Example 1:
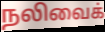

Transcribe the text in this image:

நலிவைக்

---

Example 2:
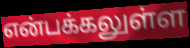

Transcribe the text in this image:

என்பக்கலுள்ள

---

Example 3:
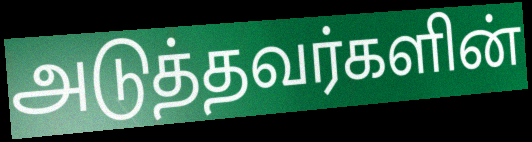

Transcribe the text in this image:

அடுத்தவர்களின்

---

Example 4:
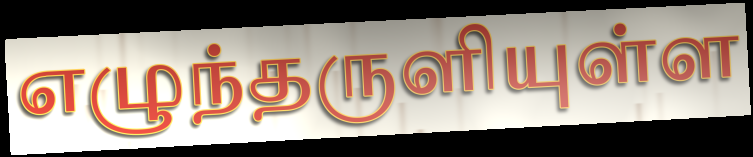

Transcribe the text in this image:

எழுந்தருளியுள்ள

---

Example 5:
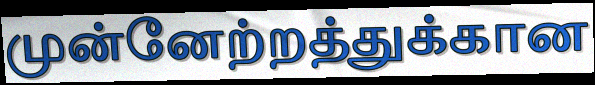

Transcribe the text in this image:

முன்னேற்றத்துக்கான